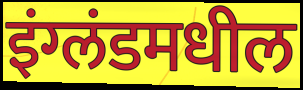
इंग्‍लंडमधील